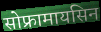
सोफ्रामायसिन